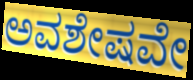
ಅವಶೇಷವೇ